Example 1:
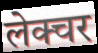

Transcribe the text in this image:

लेक्चर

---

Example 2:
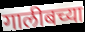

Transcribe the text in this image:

गालीबच्या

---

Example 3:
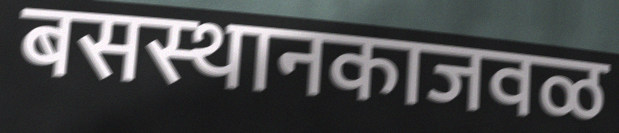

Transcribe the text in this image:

बसस्थानकाजवळ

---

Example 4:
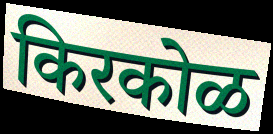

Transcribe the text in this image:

किरकोळ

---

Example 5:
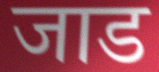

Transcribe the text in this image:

जाड